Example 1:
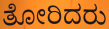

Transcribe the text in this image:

ತೋರಿದರು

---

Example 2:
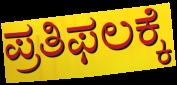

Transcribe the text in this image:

ಪ್ರತಿಫಲಕ್ಕೆ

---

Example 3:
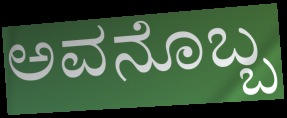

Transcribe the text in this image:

ಅವನೊಬ್ಬ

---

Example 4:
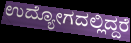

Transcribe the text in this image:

ಉದ್ಯೋಗದಲ್ಲಿದ್ದರೆ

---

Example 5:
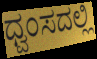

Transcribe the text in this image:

ಧ್ವಂಸದಲ್ಲಿ